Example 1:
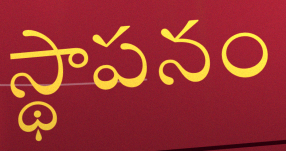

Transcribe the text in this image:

స్థాపనం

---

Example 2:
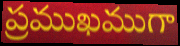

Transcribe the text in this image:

ప్రముఖముగా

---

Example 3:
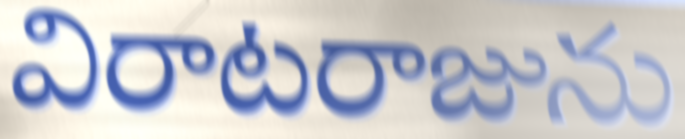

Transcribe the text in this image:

విరాటరాజును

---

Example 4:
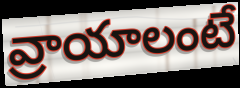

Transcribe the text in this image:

వ్రాయాలంటే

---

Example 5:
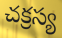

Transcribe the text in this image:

చక్రస్య